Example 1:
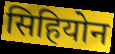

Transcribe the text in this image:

सिहियोन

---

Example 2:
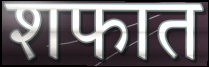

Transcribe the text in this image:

शफात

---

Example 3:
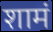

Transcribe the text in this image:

शामं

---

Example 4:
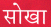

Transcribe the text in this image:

सोखा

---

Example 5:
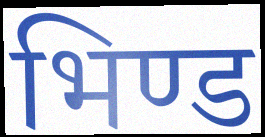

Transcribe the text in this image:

भिण्ड